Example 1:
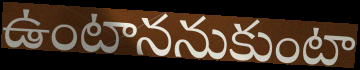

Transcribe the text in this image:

ఉంటాననుకుంటా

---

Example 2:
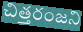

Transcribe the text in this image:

చిత్తరంజని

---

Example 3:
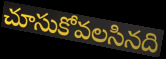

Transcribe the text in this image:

చూసుకోవలసినది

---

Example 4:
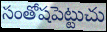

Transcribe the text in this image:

సంతోషపెట్టుచు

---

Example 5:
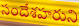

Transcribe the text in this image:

సందేశహరుని